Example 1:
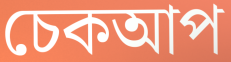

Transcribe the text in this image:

চেকআপ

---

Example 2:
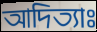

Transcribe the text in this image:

আদিত্যাঃ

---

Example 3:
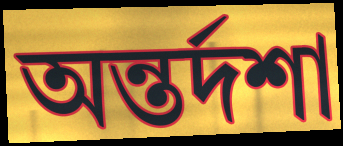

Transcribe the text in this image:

অন্তর্দশা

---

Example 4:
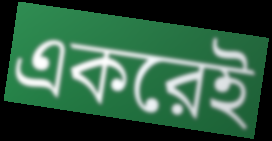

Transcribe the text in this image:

একরেই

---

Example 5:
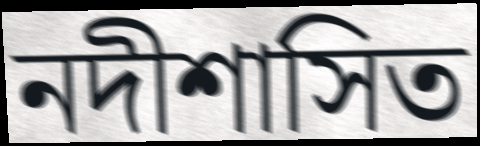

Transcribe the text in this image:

নদীশাসিত